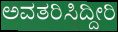
ಅವತರಿಸಿದ್ದೀರಿ